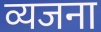
व्यजना